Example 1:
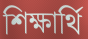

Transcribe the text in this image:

শিক্ষার্থি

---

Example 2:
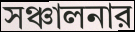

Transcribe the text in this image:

সঞ্চালনার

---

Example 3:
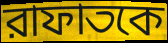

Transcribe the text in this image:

রাফাতকে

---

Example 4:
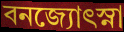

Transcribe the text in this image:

বনজ্যোৎস্না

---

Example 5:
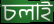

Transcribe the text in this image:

চলাই